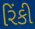
રિંકી